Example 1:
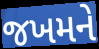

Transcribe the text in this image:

જખમને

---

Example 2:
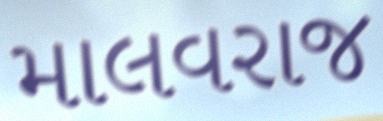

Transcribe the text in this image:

માલવરાજ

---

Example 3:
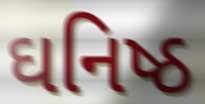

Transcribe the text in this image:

ઘનિષ્ઠ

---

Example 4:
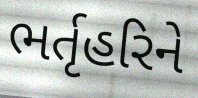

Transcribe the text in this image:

ભર્તૃહરિને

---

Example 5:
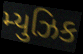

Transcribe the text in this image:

મ્યુઝિક